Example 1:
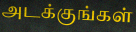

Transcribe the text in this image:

அடக்குங்கள்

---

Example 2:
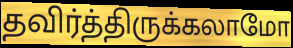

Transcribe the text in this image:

தவிர்த்திருக்கலாமோ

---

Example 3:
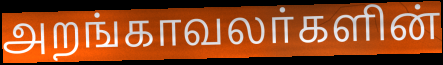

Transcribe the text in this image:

அறங்காவலர்களின்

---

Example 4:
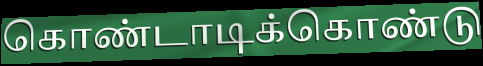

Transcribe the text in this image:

கொண்டாடிக்கொண்டு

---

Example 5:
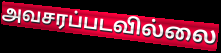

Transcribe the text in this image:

அவசரப்படவில்லை